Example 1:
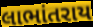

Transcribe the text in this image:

લાભાંતરાય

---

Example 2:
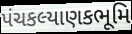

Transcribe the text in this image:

પંચકલ્યાણકભૂમિ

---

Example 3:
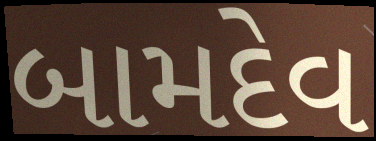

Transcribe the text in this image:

બામદેવ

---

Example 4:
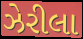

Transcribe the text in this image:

ઝેરીલા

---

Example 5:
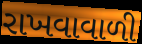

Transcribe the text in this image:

રાખવાવાળી